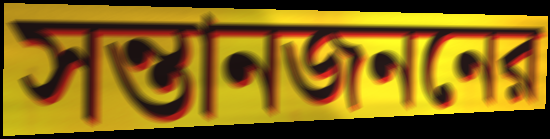
সন্তানজননের